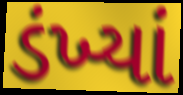
ડંખ્યાં